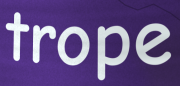
trope